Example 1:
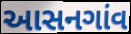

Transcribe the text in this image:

આસનગાંવ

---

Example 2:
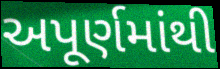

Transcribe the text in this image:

અપૂર્ણમાંથી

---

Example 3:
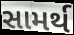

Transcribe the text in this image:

સામર્થ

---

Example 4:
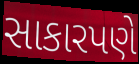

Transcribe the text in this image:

સાકારપણે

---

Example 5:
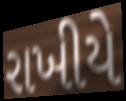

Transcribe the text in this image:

રાખીયે